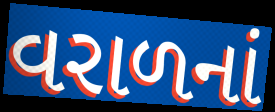
વરાળનાં